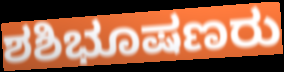
ಶಶಿಭೂಷಣರು